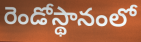
రెండోస్థానంలో